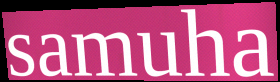
samuha